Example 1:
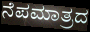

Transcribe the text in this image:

ನೆಪಮಾತ್ರದ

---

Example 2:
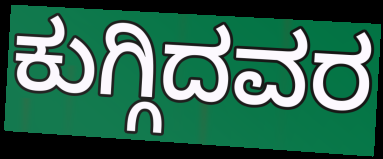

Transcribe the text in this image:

ಕುಗ್ಗಿದವರ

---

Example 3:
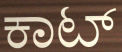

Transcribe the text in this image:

ಕಾಟ್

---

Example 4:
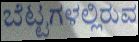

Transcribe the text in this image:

ಬೆಟ್ಟಗಳಲ್ಲಿರುವ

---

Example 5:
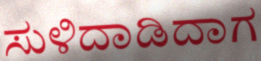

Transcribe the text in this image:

ಸುಳಿದಾಡಿದಾಗ